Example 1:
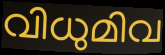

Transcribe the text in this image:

വിധുമിവ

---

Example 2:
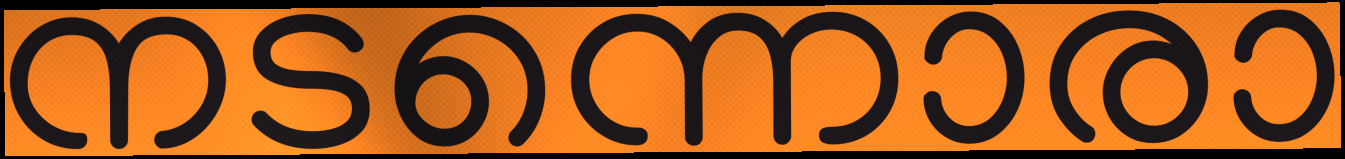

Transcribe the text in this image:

നടന്നൊരാ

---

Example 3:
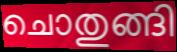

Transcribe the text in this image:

ചൊതുങ്ങി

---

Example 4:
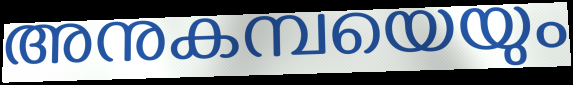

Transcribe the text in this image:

അനുകമ്പയെയും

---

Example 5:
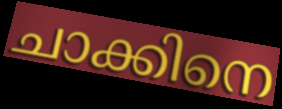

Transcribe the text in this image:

ചാക്കിനെ